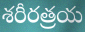
శరీరత్రయ